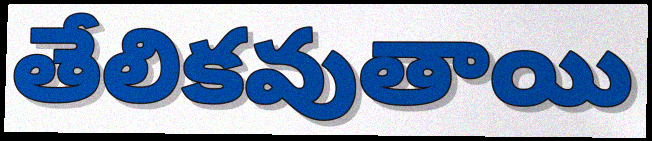
తేలికవుతాయి